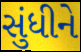
સુંધીને